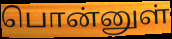
பொன்னுள்